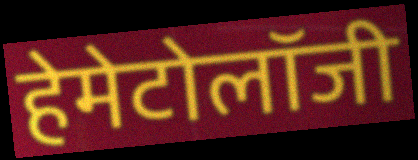
हेमेटोलॉजी